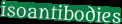
isoantibodies